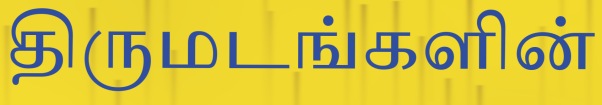
திருமடங்களின்